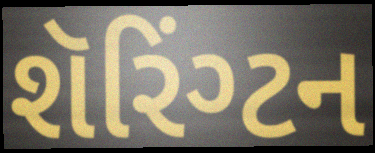
શૅરિંગ્ટન